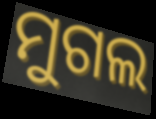
ମୁଗଲ